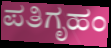
ಪತಿಗೃಹಂ